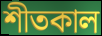
শীতকাল